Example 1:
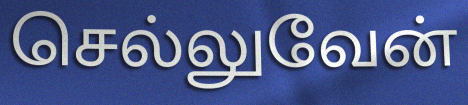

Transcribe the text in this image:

செல்லுவேன்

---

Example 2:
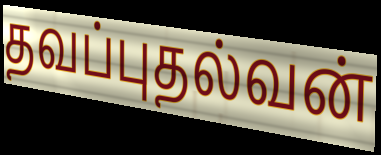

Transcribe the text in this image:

தவப்புதல்வன்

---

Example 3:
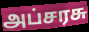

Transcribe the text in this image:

அப்சரசு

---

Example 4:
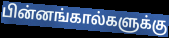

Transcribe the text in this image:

பின்னங்கால்களுக்கு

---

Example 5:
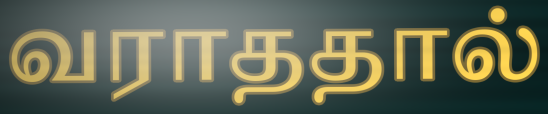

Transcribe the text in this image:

வராததால்